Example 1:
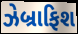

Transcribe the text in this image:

ઝેબ્રાફિશ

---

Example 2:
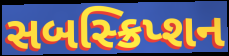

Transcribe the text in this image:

સબસ્ક્રિપ્શન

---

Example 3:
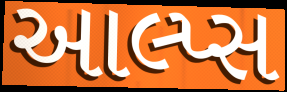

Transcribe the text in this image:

આલ્પ્સ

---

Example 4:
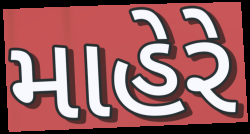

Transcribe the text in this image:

માહેરે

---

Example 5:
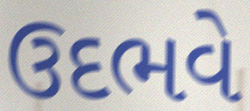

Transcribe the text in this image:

ઉદભવે